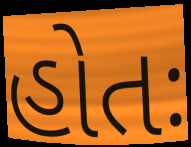
હોતઃ